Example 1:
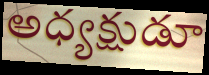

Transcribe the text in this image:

అధ్యక్షుడూ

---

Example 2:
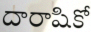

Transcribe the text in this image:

దారాషికో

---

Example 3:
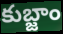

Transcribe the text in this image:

కుబ్జాం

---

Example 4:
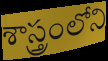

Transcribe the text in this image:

శాస్త్రంలోని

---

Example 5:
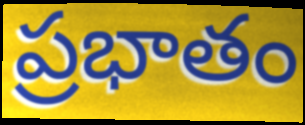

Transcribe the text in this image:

ప్రభాతం